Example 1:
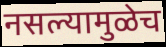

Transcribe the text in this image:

नसल्यामुळेच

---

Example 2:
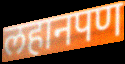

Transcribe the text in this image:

लहानपण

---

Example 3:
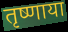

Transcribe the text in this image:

तृष्णाया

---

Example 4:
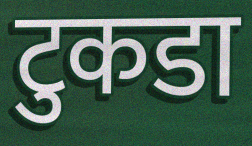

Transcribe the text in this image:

टुकडा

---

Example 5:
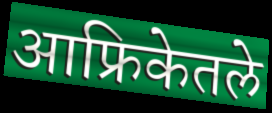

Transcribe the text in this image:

आफ्रिकेतले